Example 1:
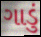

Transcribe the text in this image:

ગાડું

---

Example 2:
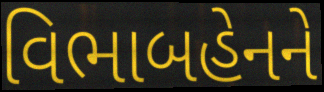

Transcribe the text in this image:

વિભાબહેનને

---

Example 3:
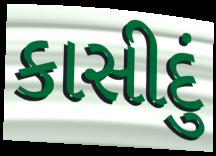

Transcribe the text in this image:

કાસીદું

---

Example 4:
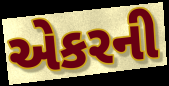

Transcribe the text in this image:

એકરની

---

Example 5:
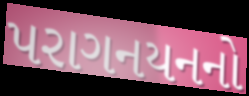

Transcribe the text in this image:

પરાગનયનનો